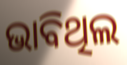
ଭାବିଥିଲ